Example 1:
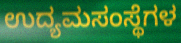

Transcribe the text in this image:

ಉದ್ಯಮಸಂಸ್ಥೆಗಳ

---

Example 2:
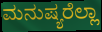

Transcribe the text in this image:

ಮನುಷ್ಯರೆಲ್ಲಾ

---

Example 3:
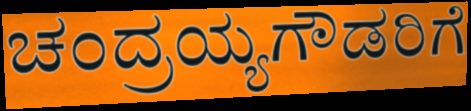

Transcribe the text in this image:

ಚಂದ್ರಯ್ಯಗೌಡರಿಗೆ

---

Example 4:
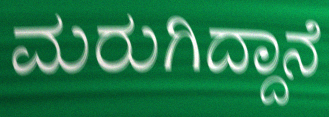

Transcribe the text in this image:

ಮರುಗಿದ್ದಾನೆ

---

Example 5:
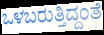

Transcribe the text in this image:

ಒಳಬರುತ್ತಿದ್ದಂತೆ